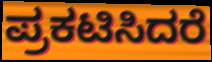
ಪ್ರಕಟಿಸಿದರೆ